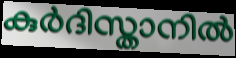
കുർദിസ്താനിൽ